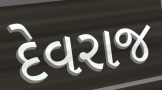
દેવરાજ